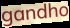
gandho